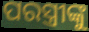
ପରସ୍ତ୍ରୀଙ୍କୁ